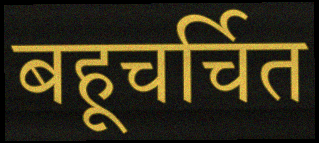
बहूचर्चित